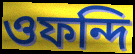
ওফন্দি